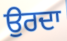
ਉਰਦਾ